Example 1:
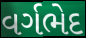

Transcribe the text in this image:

વર્ગભેદ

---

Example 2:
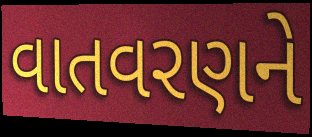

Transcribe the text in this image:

વાતવરણને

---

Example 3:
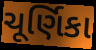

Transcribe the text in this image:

ચૂર્ણિકા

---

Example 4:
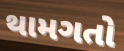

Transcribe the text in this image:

થામગતો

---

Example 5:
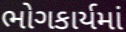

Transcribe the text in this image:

ભોગકાર્યમાં